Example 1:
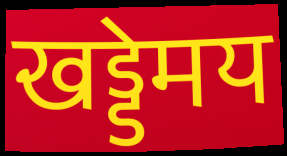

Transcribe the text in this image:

खड्डेमय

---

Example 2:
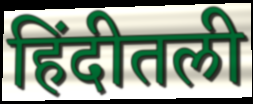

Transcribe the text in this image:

हिंदीतली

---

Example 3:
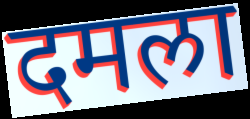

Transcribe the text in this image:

दमला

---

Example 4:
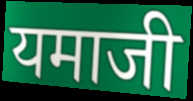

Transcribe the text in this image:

यमाजी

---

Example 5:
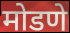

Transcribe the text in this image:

मोडणे